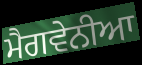
ਮੈਗਵੇਨੀਆ